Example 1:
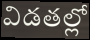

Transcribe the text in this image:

విడతల్లో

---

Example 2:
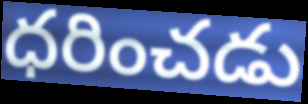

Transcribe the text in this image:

ధరించడు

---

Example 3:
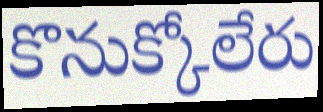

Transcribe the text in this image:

కొనుక్కోలేరు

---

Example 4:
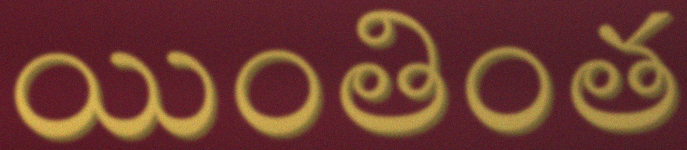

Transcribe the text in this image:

యింతింత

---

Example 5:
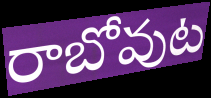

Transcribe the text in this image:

రాబోవుట